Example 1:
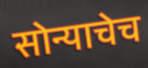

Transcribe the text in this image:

सोन्याचेच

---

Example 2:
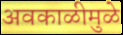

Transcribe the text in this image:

अवकाळीमुळे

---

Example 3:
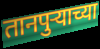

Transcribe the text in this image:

तानपुऱ्याच्या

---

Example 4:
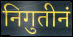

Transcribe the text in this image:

निगुतीनं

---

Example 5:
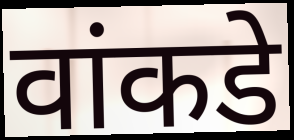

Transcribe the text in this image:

वांकडे